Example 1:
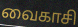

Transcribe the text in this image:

வைகாசி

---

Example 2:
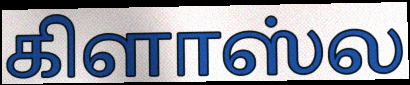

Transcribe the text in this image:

கிளாஸ்ல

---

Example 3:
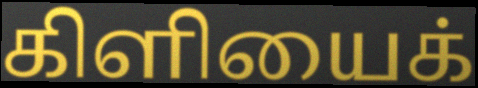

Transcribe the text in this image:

கிளியைக்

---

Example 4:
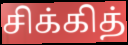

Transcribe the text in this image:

சிக்கித்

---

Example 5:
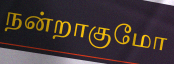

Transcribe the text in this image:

நன்றாகுமோ